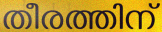
തീരത്തിന്